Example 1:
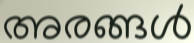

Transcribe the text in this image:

അരങ്ങൾ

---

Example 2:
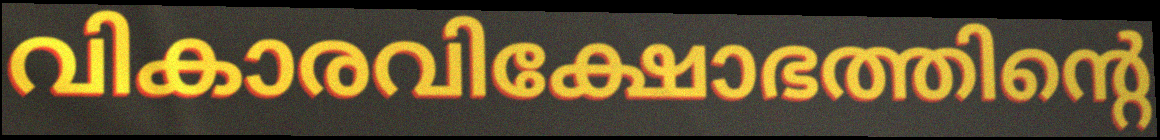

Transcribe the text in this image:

വികാരവിക്ഷോഭത്തിന്റെ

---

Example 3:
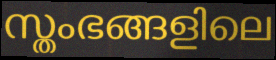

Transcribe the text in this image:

സ്തംഭങ്ങളിലെ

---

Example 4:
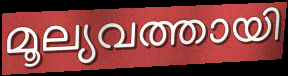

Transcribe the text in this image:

മൂല്യവത്തായി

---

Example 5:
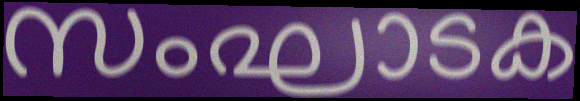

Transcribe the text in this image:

സംഘാടക